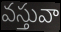
వస్తువా